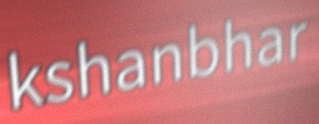
kshanbhar